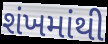
શંખમાંથી